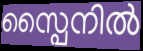
സ്പൈനിൽ